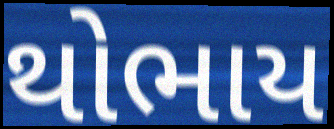
થોભાય